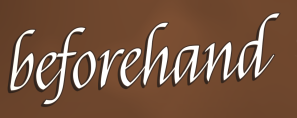
beforehand